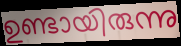
ഉണ്ടായിരുന്നു